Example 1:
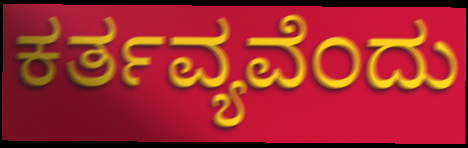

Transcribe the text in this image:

ಕರ್ತವ್ಯವೆಂದು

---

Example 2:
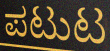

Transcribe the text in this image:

ಪಟುಟ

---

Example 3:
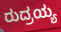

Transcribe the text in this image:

ರುದ್ರಯ್ಯ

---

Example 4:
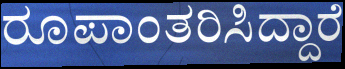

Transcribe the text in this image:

ರೂಪಾಂತರಿಸಿದ್ದಾರೆ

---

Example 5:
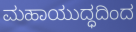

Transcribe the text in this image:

ಮಹಾಯುದ್ಧದಿಂದ